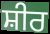
ਸ਼ੀਰ